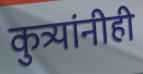
कुत्र्यांनीही